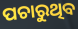
ପଚାରୁଥିବ